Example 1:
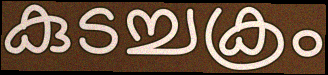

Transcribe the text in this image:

കുടച്ചക്രം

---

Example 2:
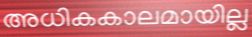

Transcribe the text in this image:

അധികകാലമായില്ല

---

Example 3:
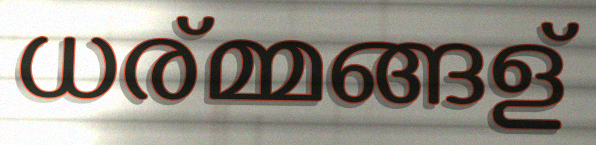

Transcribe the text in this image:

ധര്മ്മങ്ങള്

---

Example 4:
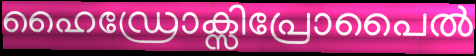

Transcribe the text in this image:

ഹൈഡ്രോക്സിപ്രോപൈൽ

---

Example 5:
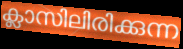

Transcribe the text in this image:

ക്ലാസിലിരിക്കുന്ന